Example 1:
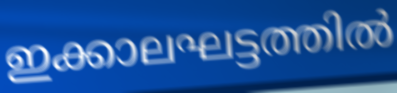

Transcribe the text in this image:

ഇക്കാലഘട്ടത്തിൽ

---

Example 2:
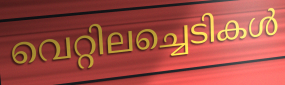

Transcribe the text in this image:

വെറ്റിലച്ചെടികൾ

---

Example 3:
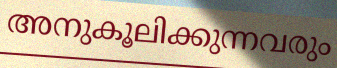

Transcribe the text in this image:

അനുകൂലിക്കുന്നവരും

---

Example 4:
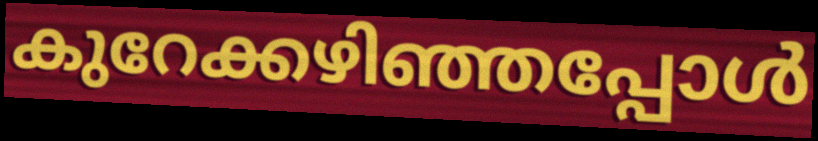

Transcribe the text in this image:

കുറേക്കഴിഞ്ഞപ്പോൾ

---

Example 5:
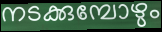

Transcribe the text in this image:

നടക്കുമ്പോഴും